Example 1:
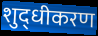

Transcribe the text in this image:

शुद्धीकरण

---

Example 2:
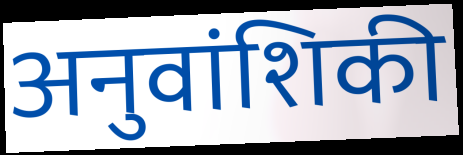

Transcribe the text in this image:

अनुवांशिकी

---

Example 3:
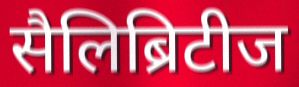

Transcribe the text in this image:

सैलिब्रिटीज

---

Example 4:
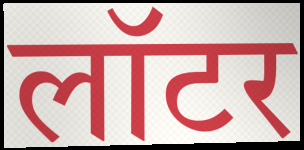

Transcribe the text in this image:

लॉटर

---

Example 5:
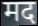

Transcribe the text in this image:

मद